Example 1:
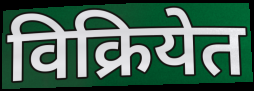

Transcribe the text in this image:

विक्रियेत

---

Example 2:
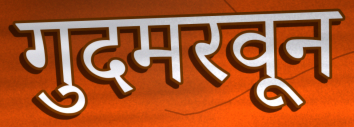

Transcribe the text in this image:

गुदमरवून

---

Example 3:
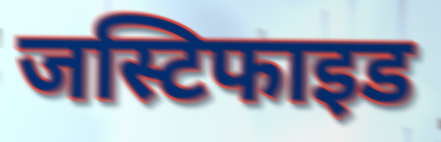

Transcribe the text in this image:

जस्टिफाइड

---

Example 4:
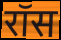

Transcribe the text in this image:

रॉस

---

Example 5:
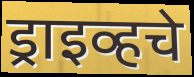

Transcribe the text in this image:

ड्राइव्हचे